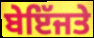
ਬੇਇੱਜਤੇ